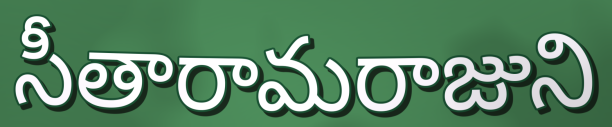
సీతారామరాజుని